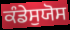
ਕੰਡੇਸੁਯੋਸ